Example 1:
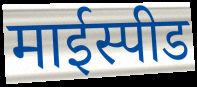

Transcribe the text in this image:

माईस्पीड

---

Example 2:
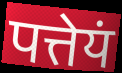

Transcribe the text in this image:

पत्तेयं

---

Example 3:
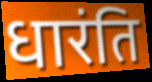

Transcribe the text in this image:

धारंति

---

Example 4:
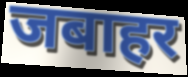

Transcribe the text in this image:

जबाहर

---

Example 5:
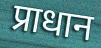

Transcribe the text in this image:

प्राधान